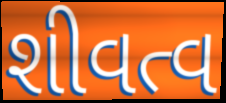
શીવત્વ